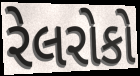
રેલરોકો